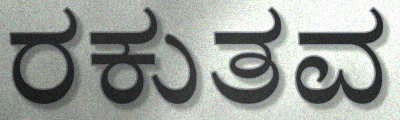
ರಕುತವ